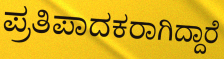
ಪ್ರತಿಪಾದಕರಾಗಿದ್ದಾರೆ